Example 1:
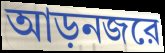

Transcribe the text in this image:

আড়নজরে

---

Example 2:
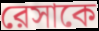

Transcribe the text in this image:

রেসাকে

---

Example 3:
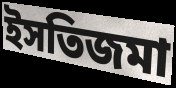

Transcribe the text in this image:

ইসতিজমা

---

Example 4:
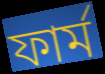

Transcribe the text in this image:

ফার্ম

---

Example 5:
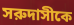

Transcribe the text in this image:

সরুদাসীকে